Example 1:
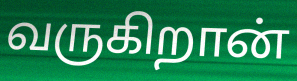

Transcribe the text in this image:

வருகிறான்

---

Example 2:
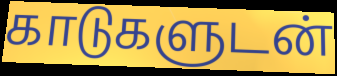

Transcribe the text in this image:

காடுகளுடன்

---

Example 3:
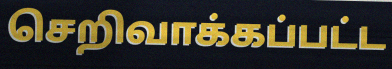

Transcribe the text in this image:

செறிவாக்கப்பட்ட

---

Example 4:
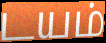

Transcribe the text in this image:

டயம்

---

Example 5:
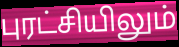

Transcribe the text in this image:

புரட்சியிலும்